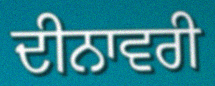
ਦੀਨਾਵਰੀ